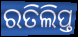
ରତିଲିପ୍ତ